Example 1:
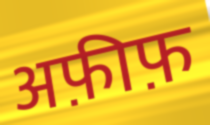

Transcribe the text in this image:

अफ़ीफ़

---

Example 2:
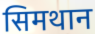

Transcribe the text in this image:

सिमथान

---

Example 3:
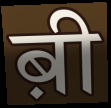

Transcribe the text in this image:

ब़ी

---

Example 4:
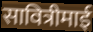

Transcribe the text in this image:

सावित्रीमाई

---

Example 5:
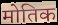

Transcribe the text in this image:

मोतिक